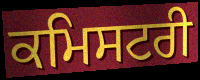
ਕਮਿਸਟਰੀ